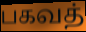
பகவத்